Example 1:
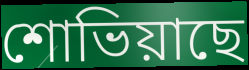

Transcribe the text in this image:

শোভিয়াছে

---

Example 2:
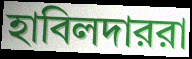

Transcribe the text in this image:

হাবিলদাররা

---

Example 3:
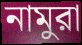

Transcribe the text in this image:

নামুরা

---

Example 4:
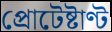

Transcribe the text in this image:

প্রোটেষ্টাণ্ট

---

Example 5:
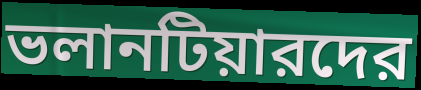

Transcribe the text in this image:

ভলানটিয়ারদের